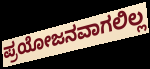
ಪ್ರಯೋಜನವಾಗಲಿಲ್ಲ